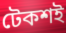
টেকশই